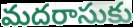
మదరాసుకు